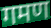
गमण